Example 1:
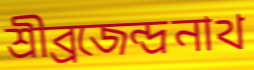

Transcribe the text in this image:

শ্রীব্রজেন্দ্রনাথ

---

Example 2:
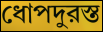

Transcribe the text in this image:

ধোপদুরস্ত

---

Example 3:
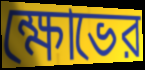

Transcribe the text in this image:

ক্ষোভের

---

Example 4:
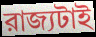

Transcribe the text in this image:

রাজ্যটাই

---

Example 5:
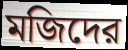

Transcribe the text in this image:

মজিদের